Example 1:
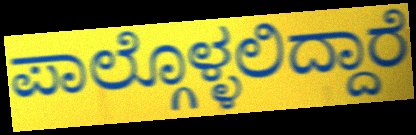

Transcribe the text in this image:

ಪಾಲ್ಗೊಳ್ಳಲಿದ್ದಾರೆ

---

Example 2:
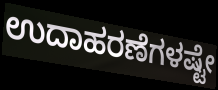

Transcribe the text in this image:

ಉದಾಹರಣೆಗಳಷ್ಟೇ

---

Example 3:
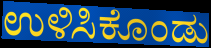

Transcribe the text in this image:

ಉಳಿಸಿಕೊಂಡು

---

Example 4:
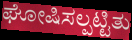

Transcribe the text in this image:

ಘೋಷಿಸಲ್ಪಟ್ಟಿತು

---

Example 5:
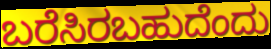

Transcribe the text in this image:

ಬರೆಸಿರಬಹುದೆಂದು